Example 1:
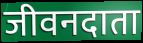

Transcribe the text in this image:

जीवनदाता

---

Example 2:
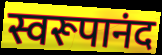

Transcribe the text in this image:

स्‍वरूपानंद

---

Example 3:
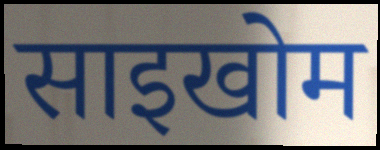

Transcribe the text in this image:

साइखोम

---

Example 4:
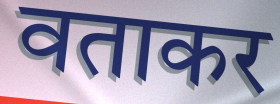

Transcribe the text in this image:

वताकर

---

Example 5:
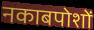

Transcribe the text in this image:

नकाबपोशों